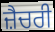
ਜ਼ੈਚਰੀ